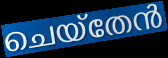
ചെയ്‌തേൻ